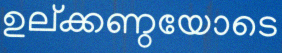
ഉല്ക്കണ്ഠയോടെ